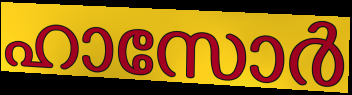
ഹാസോർ